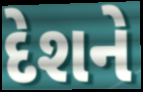
દેશને